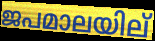
ജപമാലയില്